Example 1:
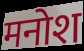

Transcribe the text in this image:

मनोश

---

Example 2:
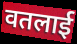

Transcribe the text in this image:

वतलाई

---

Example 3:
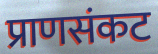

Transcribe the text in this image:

प्राणसंकट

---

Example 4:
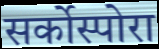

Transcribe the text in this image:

सर्कोस्पोरा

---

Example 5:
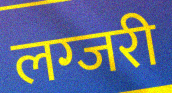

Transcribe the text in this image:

लग्‍जरी